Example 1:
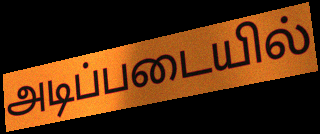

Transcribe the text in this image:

அடிப்படையில்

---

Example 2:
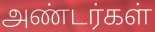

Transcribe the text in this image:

அண்டர்கள்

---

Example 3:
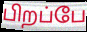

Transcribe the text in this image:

பிறப்பே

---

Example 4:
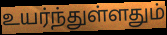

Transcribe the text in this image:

உயர்ந்துள்ளதும்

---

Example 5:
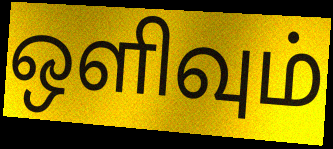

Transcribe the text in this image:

ஒளிவும்